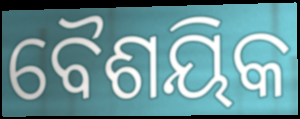
ବୈଶୟିକ